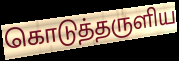
கொடுத்தருளிய